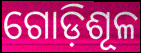
ଗୋଡ଼ିଶୂଳ